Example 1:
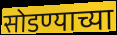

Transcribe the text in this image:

सोडण्याच्या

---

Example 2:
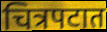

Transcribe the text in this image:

चित्रपटात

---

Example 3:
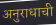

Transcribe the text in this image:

अनुराधाची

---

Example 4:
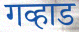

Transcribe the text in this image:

गव्हाड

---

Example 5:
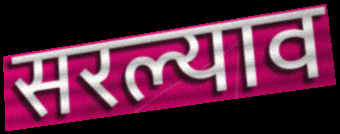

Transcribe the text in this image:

सरल्याव